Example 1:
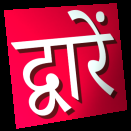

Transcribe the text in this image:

द्वारें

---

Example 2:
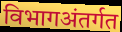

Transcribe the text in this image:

विभागअंतर्गत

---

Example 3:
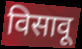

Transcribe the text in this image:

विसावू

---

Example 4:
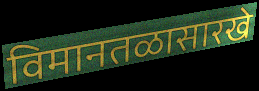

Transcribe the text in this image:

विमानतळासारखे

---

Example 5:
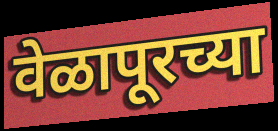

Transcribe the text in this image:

वेळापूरच्या